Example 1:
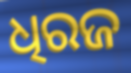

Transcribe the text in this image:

ଧିରଜ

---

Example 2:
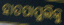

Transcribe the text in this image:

ହାତପାପୁଲିକୁ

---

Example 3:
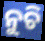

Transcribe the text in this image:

ନୁଚି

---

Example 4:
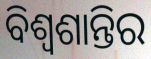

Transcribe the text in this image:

ବିଶ୍ୱଶାନ୍ତିର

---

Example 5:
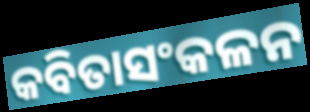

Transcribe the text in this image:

କବିତାସଂକଳନ